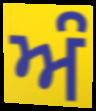
ਅੰ